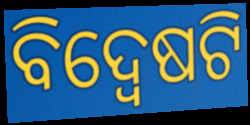
ବିଦ୍ୱେଷଟି